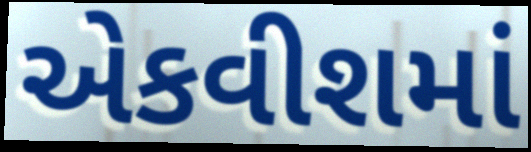
એકવીશમાં